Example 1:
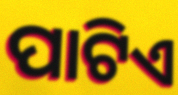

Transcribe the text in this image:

ପାଟିଏ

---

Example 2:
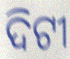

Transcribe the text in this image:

ଦିଟୀ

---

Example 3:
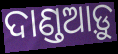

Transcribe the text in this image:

ଦାଣ୍ଡଆଡ଼ୁ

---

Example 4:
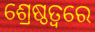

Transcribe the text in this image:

ଶ୍ରେଷ୍ଠତ୍ୱରେ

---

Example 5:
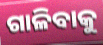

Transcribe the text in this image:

ଗାଳିବାକୁ